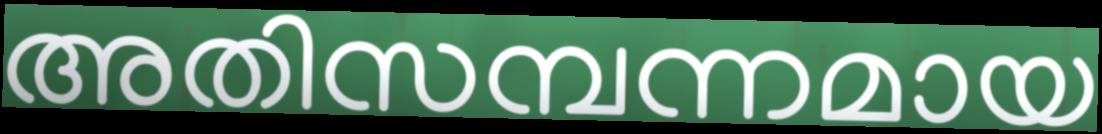
അതിസമ്പന്നമായ